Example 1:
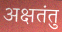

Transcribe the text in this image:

अक्षतंतु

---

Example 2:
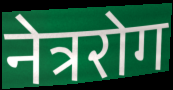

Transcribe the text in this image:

नेत्ररोग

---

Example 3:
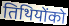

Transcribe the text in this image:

तिथियोंको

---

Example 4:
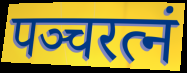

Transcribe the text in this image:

पञ्चरत्नं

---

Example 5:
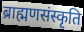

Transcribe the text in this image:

ब्राह्मणसंस्कृति